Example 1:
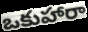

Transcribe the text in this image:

ఒకుహారా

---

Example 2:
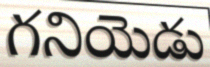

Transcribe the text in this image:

గనియెడు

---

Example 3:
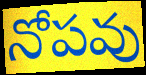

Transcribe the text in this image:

నోపవు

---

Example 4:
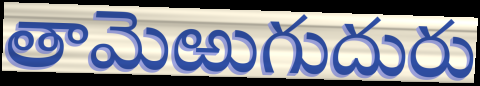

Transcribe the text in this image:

తామెఱుగుదురు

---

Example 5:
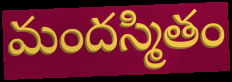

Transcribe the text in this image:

మందస్మితం